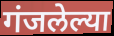
गंजलेल्या